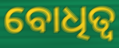
ବୋଧିତ୍ୱ